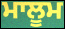
ਮਾਲੂਮ